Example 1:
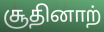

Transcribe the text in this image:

சூதினாற்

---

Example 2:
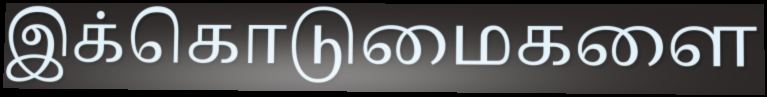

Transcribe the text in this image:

இக்கொடுமைகளை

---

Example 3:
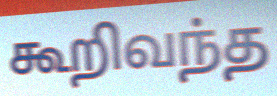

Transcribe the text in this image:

கூறிவந்த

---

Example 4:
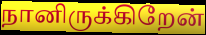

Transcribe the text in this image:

நானிருக்கிறேன்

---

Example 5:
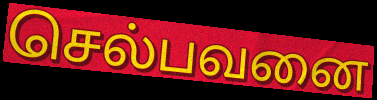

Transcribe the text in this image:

செல்பவனை